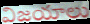
విజయాలు